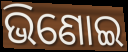
ଭିଣୋଇ